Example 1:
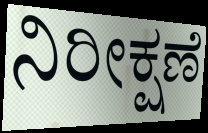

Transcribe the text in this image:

ನಿರೀಕ್ಷಣೆ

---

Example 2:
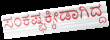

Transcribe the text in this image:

ಸಂಕಷ್ಟಕ್ಕೀಡಾಗಿದ್ದ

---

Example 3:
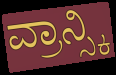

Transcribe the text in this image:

ವ್ರಾನ್ಸ್ಕಿ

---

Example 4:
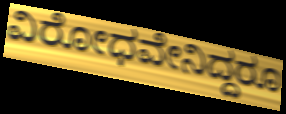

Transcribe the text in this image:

ವಿರೋಧವೇನಿದ್ದರೂ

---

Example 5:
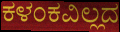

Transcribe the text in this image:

ಕಳಂಕವಿಲ್ಲದ